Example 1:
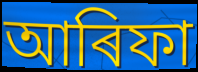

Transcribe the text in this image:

আৰিফা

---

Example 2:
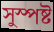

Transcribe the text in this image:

সুস্পষ্ট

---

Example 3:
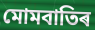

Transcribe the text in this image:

মোমবাতিৰ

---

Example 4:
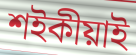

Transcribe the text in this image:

শইকীয়াই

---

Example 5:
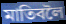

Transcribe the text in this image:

মাতিবলৈ